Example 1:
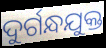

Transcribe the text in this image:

ଦୁର୍ଗନ୍ଧଯୁକ୍ତ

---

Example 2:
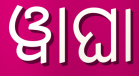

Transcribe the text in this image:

ୱାଘା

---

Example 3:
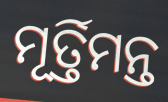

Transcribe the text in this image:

ମୂର୍ତ୍ତିମନ୍ତ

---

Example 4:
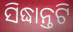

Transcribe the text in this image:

ସିଦ୍ଧାନ୍ତଟି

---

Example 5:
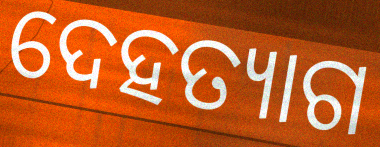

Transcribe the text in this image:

ଦେହତ୍ୟାଗ